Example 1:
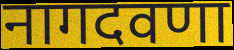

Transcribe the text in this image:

नागदवणा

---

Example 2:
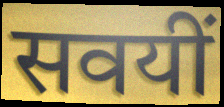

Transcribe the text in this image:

सवयीं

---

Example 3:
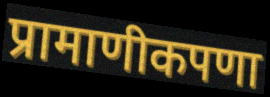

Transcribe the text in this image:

प्रामाणीकपणा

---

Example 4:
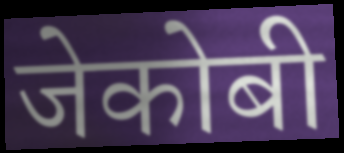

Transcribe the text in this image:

जेकोबी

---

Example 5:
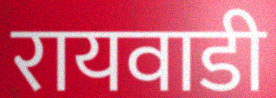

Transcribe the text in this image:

रायवाडी